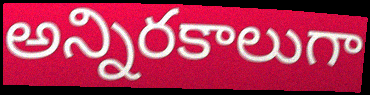
అన్నిరకాలుగా